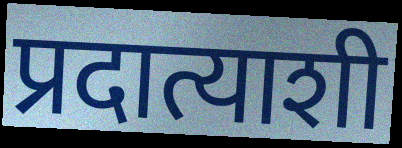
प्रदात्याशी